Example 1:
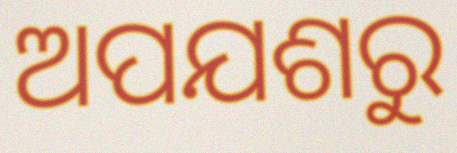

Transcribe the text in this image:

ଅପଯଶରୁ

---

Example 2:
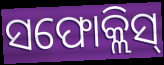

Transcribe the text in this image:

ସଫୋକ୍ଲିସ୍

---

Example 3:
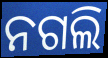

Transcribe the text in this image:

ନଗଲି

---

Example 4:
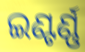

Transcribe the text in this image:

ଇଣ୍ଟର୍ଣ୍ଣ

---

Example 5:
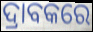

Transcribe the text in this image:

ଦ୍ରାବକରେ